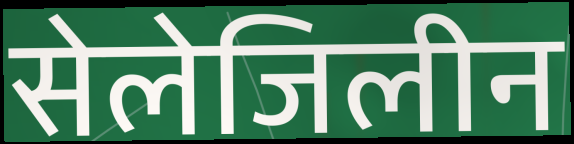
सेलेजिलीन